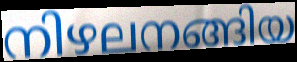
നിഴലനങ്ങിയ